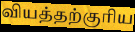
வியத்தற்குரிய